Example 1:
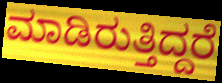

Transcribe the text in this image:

ಮಾಡಿರುತ್ತಿದ್ದರೆ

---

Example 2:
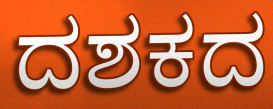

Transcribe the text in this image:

ದಶಕದ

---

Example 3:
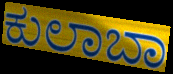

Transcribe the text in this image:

ಕುಲಾಬಾ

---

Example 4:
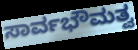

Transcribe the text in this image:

ಸಾರ್ವಭೌಮತ್ವ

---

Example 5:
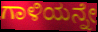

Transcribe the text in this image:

ಗಾಳಿಯನ್ನೇ